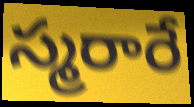
స్మరారే